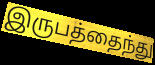
இருபத்தைந்து